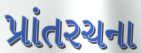
પ્રાંતરચના